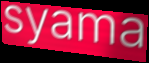
syama